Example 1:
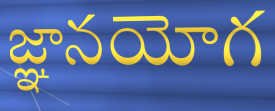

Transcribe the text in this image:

జ్ఞానయోగ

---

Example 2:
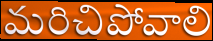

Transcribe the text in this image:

మరిచిపోవాలి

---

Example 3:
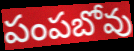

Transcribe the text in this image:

పంపబోవు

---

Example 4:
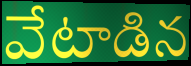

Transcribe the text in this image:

వేటాడిన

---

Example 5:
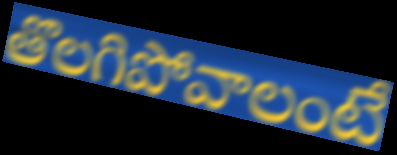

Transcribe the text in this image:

తొలగిపోవాలంటే